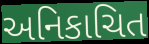
અનિકાચિત